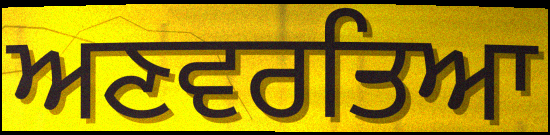
ਅਣਵਰਤਿਆ